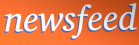
newsfeed